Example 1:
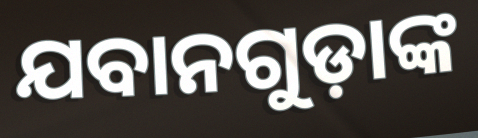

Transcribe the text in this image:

ଯବାନଗୁଡ଼ାଙ୍କ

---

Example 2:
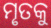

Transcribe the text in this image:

ମୃତକୁ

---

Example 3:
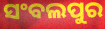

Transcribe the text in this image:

ସଂବଲପୁର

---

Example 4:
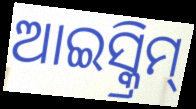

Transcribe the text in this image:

ଆଇସ୍କ୍ରିମ୍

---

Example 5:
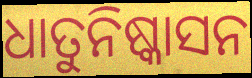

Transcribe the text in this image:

ଧାତୁନିଷ୍କାସନ